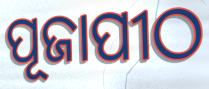
ପୂଜାପୀଠ